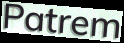
Patrem